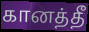
கானத்தீ